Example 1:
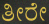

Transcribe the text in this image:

ತೀರೇ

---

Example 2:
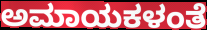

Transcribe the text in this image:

ಅಮಾಯಕಳಂತೆ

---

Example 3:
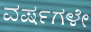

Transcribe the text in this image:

ವರ್ಷಗಳೇ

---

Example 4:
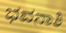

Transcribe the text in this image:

ಭವನಾಶಿ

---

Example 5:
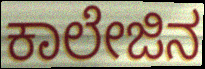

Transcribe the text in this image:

ಕಾಲೇಜಿನ